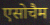
एसोचैम